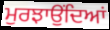
ਮੁਰਝਾਉਂਦਿਆਂ